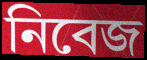
নিবেজ